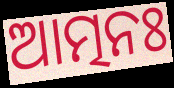
ଆତ୍ମନଃ